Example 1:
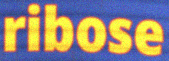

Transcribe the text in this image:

ribose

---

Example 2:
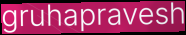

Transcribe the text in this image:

gruhapravesh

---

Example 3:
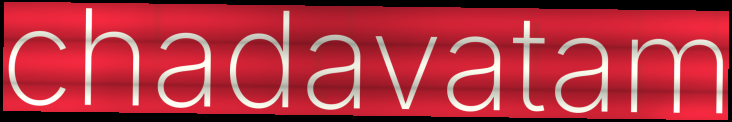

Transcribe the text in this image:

chadavatam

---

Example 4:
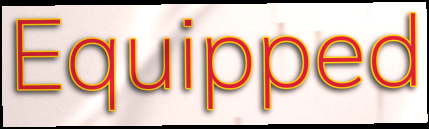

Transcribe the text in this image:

Equipped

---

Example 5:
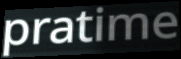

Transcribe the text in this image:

pratime